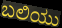
ಬಲಿಯು